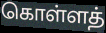
கொள்ளத்